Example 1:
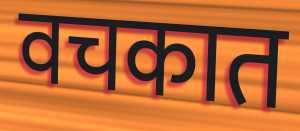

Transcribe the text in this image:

वचकात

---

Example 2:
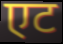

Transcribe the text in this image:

एट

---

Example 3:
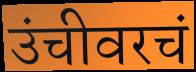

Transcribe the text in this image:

उंचीवरचं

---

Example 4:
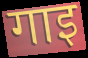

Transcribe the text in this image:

गाइ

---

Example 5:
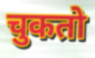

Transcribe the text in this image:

चुकतो